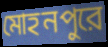
মোহনপুরে